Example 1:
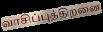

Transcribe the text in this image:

வாசிப்புத்திறனை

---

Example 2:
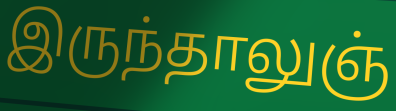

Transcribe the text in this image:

இருந்தாலுஞ்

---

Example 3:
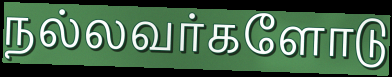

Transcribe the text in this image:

நல்லவர்களோடு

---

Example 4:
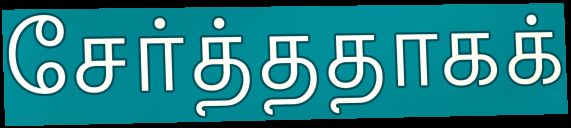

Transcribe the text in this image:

சேர்த்ததாகக்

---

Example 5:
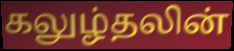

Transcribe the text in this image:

கலுழ்தலின்